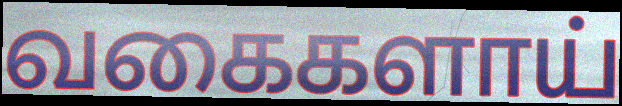
வகைகளாய்